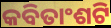
କବିତାଂଶଟି